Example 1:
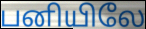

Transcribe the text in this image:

பனியிலே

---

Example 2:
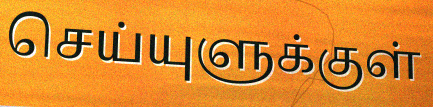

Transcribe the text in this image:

செய்யுளுக்குள்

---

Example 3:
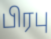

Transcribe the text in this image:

பிரபு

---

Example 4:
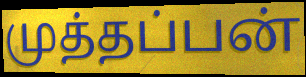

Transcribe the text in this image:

முத்தப்பன்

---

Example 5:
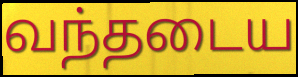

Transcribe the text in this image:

வந்தடைய